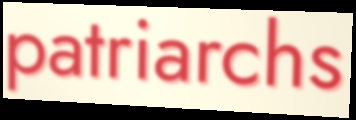
patriarchs